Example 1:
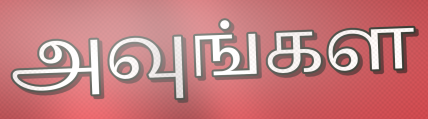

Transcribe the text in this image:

அவுங்கள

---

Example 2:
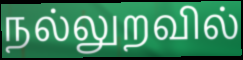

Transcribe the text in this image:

நல்லுறவில்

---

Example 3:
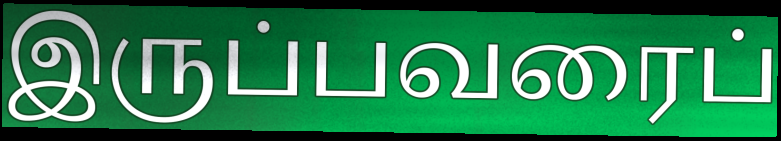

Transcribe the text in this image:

இருப்பவரைப்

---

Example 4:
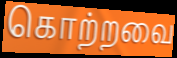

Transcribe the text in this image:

கொற்றவை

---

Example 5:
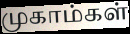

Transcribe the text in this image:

முகாம்கள்